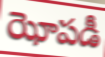
ఝోపడీ